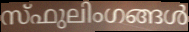
സ്ഫുലിംഗങ്ങൾ